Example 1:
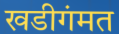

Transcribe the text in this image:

खडीगंमत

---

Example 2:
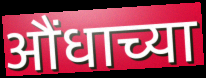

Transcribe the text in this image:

औंधाच्या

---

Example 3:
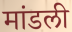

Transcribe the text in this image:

मांडली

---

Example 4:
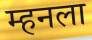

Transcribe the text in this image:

म्हनला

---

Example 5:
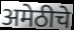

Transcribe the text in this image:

अमेठीचे